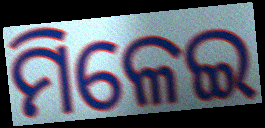
ମିଳେଇ